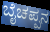
ಬೈಚಪ್ಪನ